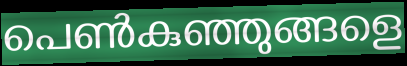
പെൺകുഞ്ഞുങ്ങളെ